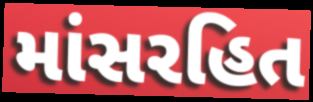
માંસરહિત